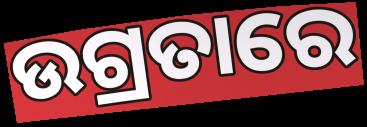
ଉଗ୍ରତାରେ